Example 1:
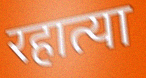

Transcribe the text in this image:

रहात्या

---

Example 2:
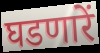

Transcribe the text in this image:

घडणारें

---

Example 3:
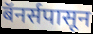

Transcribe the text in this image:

बॅनर्सपासून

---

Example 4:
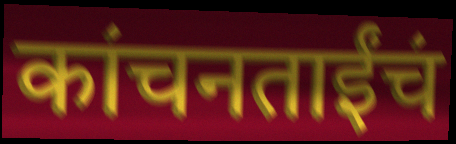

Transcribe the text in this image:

कांचनताईंचं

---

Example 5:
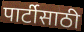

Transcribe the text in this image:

पार्टीसाठी